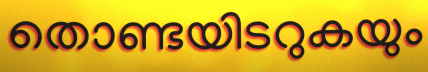
തൊണ്ടയിടറുകയും